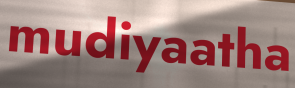
mudiyaatha